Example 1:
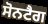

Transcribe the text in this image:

ਸੋਨਟੈਗ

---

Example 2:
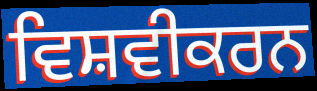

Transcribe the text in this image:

ਵਿਸ਼ਵੀਕਰਨ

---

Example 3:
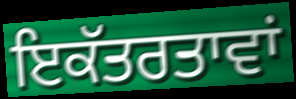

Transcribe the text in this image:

ਇਕੱਤਰਤਾਵਾਂ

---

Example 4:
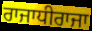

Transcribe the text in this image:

ਰਾਜਾਧੀਰਾਜਾ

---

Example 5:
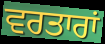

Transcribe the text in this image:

ਵਰਤਾਰਾਂ